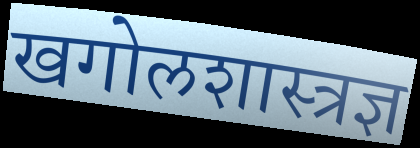
खगोलशास्त्रज्ञ